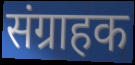
संग्राहक